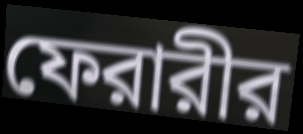
ফেরারীর